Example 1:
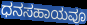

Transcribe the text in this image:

ಧನಸಹಾಯವೂ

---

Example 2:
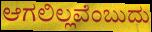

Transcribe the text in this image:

ಆಗಲಿಲ್ಲವೆಂಬುದು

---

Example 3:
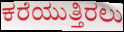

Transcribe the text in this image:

ಕರೆಯುತ್ತಿರಲು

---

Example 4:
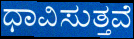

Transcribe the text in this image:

ಧಾವಿಸುತ್ತವೆ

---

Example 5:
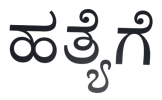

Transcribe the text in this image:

ಹತ್ಯೆಗೆ